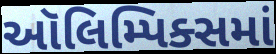
ઑલિમ્પિક્સમાં